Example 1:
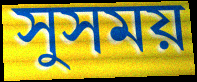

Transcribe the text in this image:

সুসময়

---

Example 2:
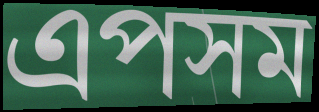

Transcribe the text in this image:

এপসম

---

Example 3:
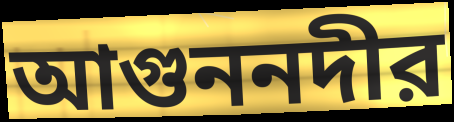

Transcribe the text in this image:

আগুননদীর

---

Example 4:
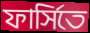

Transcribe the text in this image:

ফার্সিতে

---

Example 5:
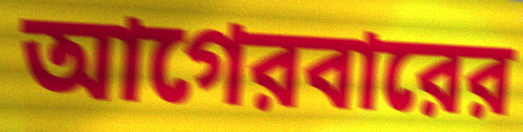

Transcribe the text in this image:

আগেরবারের